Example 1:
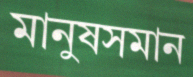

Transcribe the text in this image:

মানুষসমান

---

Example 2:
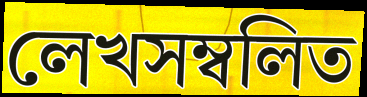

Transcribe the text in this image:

লেখসম্বলিত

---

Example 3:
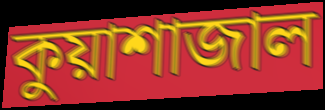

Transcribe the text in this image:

কুয়াশাজাল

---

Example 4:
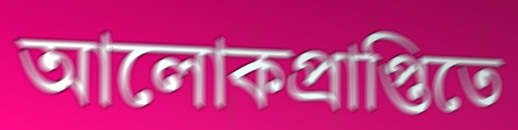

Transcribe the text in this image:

আলোকপ্রাপ্তিতে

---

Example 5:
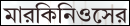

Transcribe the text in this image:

মারকিনিওসের